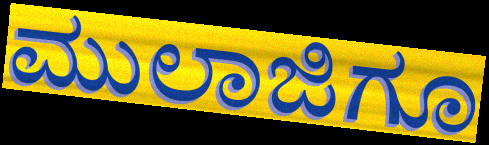
ಮುಲಾಜಿಗೂ